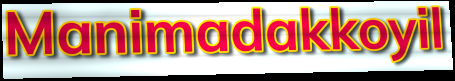
Manimadakkoyil